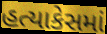
હત્યાકેસમાં